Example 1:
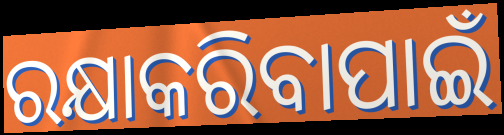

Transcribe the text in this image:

ରକ୍ଷାକରିବାପାଇଁ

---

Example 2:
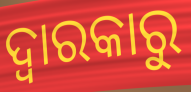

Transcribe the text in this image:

ଦ୍ଵାରକାରୁ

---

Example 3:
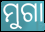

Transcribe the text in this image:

ମୁଗା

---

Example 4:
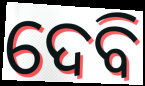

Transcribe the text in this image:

ଦେବି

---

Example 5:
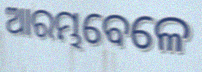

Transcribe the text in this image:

ଆରମ୍ଭବେଳେ